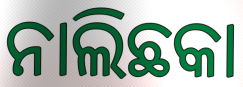
ନାଲିଛକା